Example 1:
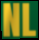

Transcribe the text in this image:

NL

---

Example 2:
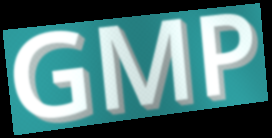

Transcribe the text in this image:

GMP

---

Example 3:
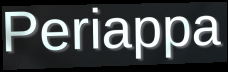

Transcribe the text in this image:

Periappa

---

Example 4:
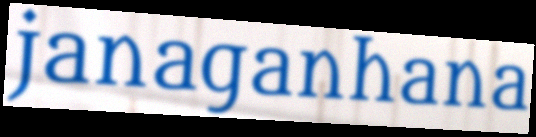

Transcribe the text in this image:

janaganhana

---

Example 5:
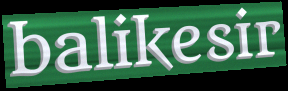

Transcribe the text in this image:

balikesir